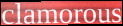
clamorous